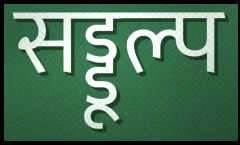
सड्डूल्प